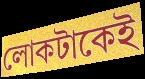
লোকটাকেই